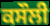
ਕਸੌਲੀ